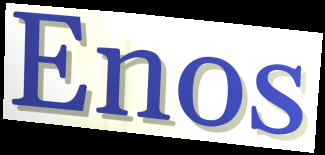
Enos